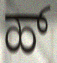
ಹ್